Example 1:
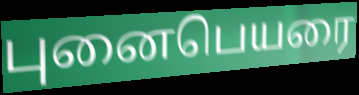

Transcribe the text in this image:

புனைபெயரை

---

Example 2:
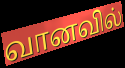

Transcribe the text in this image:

வானவில்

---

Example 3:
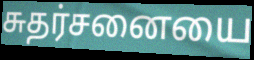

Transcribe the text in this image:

சுதர்சனையை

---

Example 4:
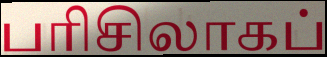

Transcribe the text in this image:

பரிசிலாகப்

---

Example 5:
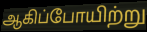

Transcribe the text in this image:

ஆகிப்போயிற்று